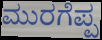
ಮುರಗೆಪ್ಪ